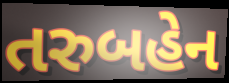
તરુબહેન